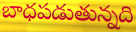
బాధపడుతున్నది